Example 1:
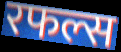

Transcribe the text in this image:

रफल्स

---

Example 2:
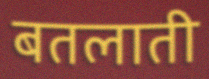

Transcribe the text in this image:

बतलाती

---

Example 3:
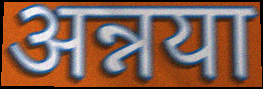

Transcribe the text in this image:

अन्नया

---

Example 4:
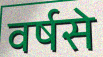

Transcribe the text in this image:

वर्षसे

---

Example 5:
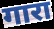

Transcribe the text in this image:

गारा